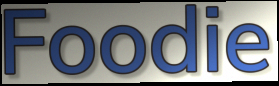
Foodie